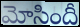
మోసిందీ